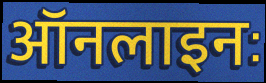
ऑनलाइनः